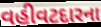
વહીવટદારના